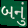
બનું